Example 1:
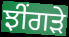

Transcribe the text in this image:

ਝੀਂਗੜੇ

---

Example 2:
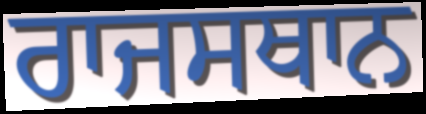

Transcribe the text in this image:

ਰਾਜਸਥਾਨ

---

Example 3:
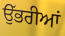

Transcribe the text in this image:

ਉੱਭਰੀਆਂ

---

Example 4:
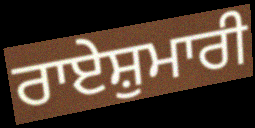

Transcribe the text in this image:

ਰਾਏਸ਼ੁਮਾਰੀ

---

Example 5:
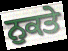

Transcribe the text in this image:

ਨੁਕਤੇ